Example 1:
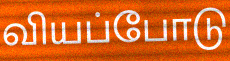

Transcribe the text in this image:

வியப்போடு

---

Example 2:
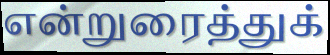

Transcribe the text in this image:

என்றுரைத்துக்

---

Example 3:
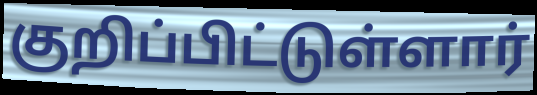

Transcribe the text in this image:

குறிப்பிட்டுள்ளார்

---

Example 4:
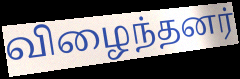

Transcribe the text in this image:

விழைந்தனர்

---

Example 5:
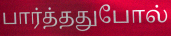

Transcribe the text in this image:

பார்த்ததுபோல்